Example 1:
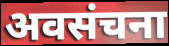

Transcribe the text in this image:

अवसंचना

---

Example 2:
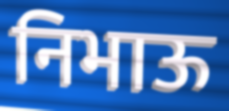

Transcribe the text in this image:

निभाऊ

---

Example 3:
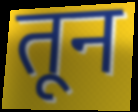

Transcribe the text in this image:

तून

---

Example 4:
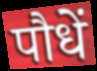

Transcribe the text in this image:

पौधें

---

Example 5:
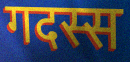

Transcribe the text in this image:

गदस्स